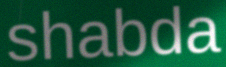
shabda